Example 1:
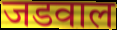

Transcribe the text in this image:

जडवाल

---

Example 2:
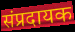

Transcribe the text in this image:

संप्रदायक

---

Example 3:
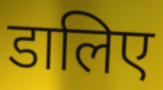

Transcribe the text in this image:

डालिए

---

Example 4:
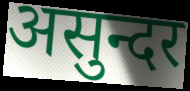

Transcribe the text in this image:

असुन्दर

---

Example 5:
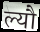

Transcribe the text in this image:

ल्यौ